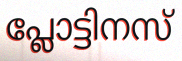
പ്ലോട്ടിനസ്